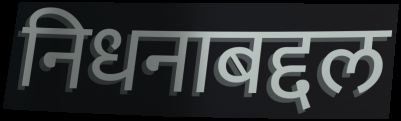
निधनाबद्दल